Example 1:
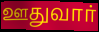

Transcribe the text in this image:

ஊதுவார்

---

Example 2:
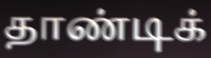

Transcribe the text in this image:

தாண்டிக்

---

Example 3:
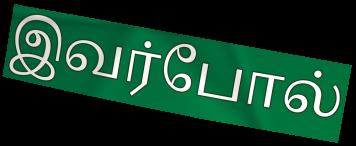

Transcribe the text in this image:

இவர்போல்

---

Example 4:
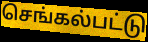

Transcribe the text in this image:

செங்கல்பட்டு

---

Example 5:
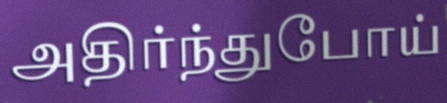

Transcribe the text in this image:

அதிர்ந்துபோய்